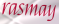
rasmay